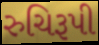
રુચિરૂપી